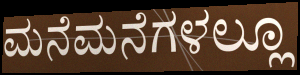
ಮನೆಮನೆಗಳಲ್ಲೂ